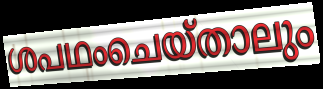
ശപഥംചെയ്താലും